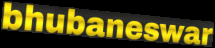
bhubaneswar